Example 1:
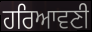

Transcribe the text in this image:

ਹਰਿਆਵਣੀ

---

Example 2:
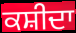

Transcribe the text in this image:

ਕਸ਼ੀਦਾ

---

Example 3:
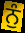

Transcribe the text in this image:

ਨੁੰ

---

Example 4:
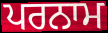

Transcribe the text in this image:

ਪਰਨਾਮ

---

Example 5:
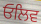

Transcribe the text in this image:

ਓਲਿਵ